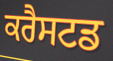
ਕਰੈਸਟਡ